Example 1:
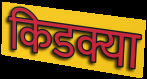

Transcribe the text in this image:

किडक्या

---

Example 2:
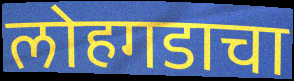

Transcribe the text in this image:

लोहगडाचा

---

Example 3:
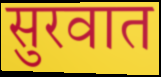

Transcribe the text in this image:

सुरवात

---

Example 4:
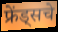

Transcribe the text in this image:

फ्रेंड्सचे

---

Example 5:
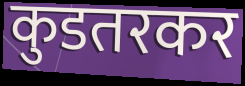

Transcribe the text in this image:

कुडतरकर